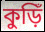
কুড়িঁ